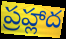
ప్రహ్లాద